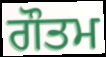
ਗੌਤਮ